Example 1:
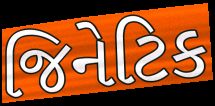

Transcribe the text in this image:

જિનેટિક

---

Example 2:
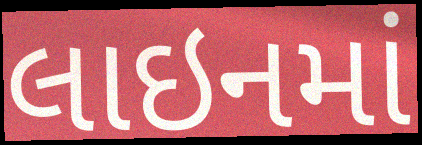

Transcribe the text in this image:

લાઇનમાં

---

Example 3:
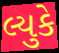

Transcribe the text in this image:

લ્યુકે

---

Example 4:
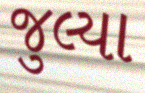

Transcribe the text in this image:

જુલ્યા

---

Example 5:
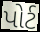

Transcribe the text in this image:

પોર્ટ